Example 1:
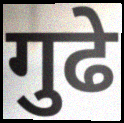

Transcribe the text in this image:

गुढे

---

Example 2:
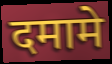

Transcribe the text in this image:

दमामे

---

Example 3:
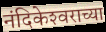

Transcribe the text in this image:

नंदिकेश्वराच्या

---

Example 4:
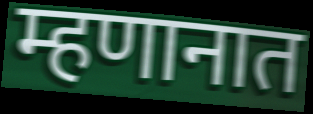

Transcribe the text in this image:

म्हणानात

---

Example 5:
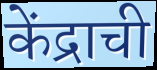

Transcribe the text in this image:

केंद्राची